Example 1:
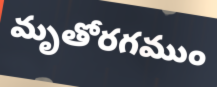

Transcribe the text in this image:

మృతోరగముం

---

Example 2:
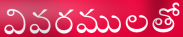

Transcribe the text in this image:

వివరములతో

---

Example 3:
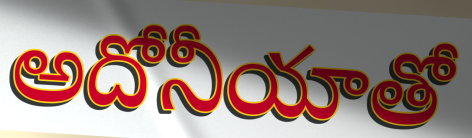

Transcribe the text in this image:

అదోనీయాతో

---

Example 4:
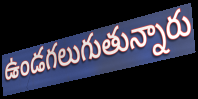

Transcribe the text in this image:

ఉండగలుగుతున్నారు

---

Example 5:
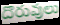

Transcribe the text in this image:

దొరువులు